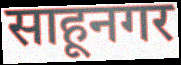
साहूनगर